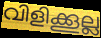
വിളിക്കൂല്ല